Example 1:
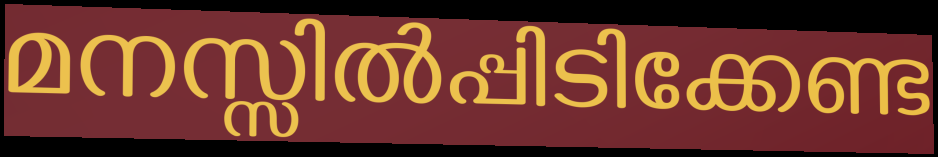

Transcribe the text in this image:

മനസ്സിൽപ്പിടിക്കേണ്ട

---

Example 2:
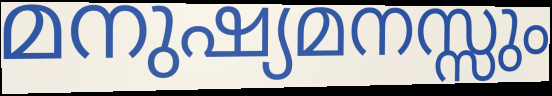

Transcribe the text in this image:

മനുഷ്യമനസ്സും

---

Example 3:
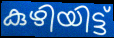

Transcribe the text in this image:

കുഴിയിട്ട്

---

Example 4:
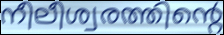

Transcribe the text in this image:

നീലീശ്വരത്തിന്റെ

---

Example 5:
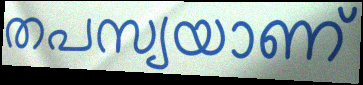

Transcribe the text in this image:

തപസ്യയാണ്